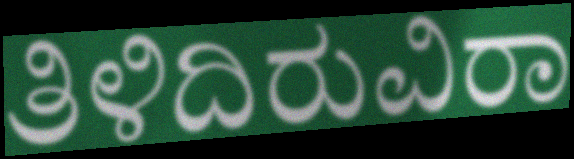
ತಿಳಿದಿರುವಿರಾ